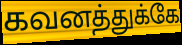
கவனத்துக்கே